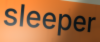
sleeper